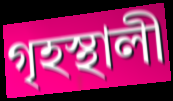
গৃহস্থালী